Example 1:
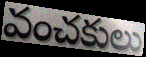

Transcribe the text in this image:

వంచకులు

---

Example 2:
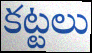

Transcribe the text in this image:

కట్టలు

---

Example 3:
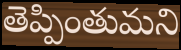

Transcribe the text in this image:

తెప్పింతుమని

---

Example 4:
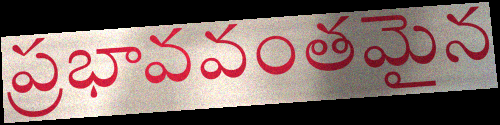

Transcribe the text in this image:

ప్రభావవంతమైన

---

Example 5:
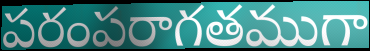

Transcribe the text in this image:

పరంపరాగతముగా